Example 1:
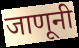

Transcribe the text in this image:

जाणूनी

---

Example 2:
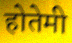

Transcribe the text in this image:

होतेमी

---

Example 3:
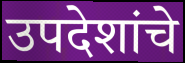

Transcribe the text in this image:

उपदेशांचे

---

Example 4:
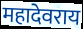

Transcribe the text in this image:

महादेवराय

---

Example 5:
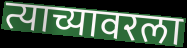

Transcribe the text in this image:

त्याच्यावरला